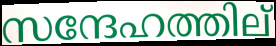
സന്ദേഹത്തില്